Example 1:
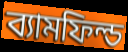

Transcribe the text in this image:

ব্যামফিল্ড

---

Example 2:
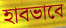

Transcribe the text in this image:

হাবভাবে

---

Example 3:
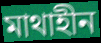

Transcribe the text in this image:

মাথাহীন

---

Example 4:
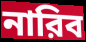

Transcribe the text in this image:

নারিব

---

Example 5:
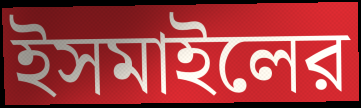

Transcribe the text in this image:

ইসমাইলের